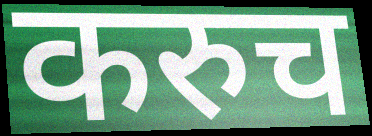
करुच